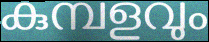
കുമ്പളവും